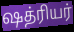
ஷத்ரியர்